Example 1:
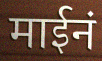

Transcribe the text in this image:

माईनं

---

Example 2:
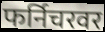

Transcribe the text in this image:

फर्निचरवर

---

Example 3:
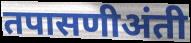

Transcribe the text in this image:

तपासणीअंती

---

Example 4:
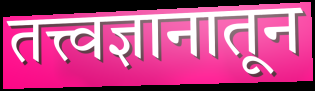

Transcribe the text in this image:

तत्त्वज्ञानातून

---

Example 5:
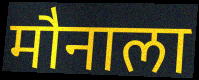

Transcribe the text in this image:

मौनाला